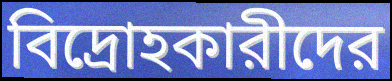
বিদ্রোহকারীদের